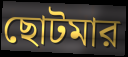
ছোটমার